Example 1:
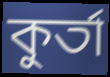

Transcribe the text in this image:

কুৰ্তা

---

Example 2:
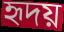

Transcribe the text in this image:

হৃদয়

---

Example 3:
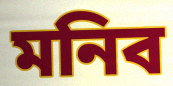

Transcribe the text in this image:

মনিব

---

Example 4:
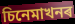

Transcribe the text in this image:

চিনেমাখনৰ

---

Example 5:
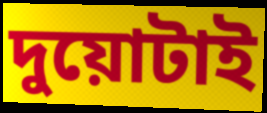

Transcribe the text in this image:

দুয়োটাই